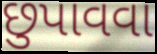
છુપાવવા